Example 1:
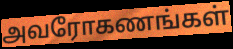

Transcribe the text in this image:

அவரோகணங்கள்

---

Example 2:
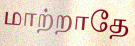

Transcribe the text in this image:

மாற்றாதே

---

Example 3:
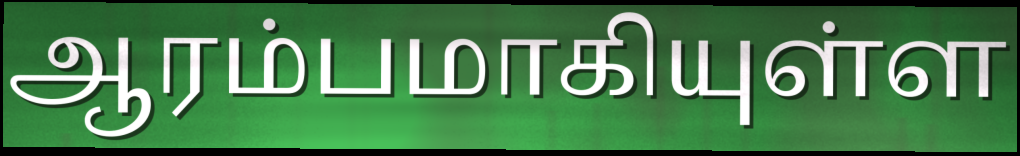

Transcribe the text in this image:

ஆரம்பமாகியுள்ள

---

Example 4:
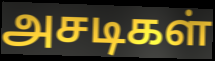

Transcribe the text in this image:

அசடிகள்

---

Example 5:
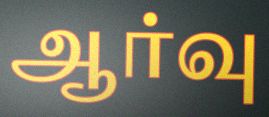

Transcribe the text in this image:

ஆர்வு